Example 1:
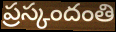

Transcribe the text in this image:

ప్రస్కందంతి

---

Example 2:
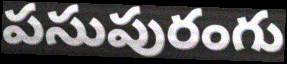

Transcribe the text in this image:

పసుపురంగు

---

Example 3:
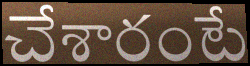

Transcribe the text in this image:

చేశారంటే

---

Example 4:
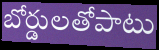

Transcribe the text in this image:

బోర్డులతోపాటు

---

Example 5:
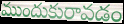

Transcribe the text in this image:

ముందుకురావడం